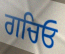
ਗਚਿਓ